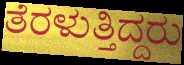
ತೆರಳುತ್ತಿದ್ದರು